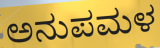
ಅನುಪಮಳ